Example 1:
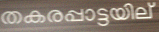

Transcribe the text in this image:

തകരപ്പാട്ടയില്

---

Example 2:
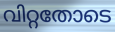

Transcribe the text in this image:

വിറ്റതോടെ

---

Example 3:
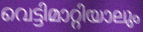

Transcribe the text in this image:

വെട്ടിമാറ്റിയാലും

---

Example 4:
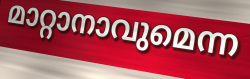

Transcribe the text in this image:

മാറ്റാനാവുമെന്ന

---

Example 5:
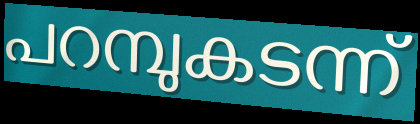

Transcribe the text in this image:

പറമ്പുകടന്ന്